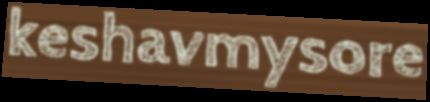
keshavmysore